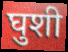
घुशी